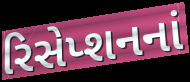
રિસેપ્શનનાં